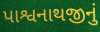
પાશ્વનાથજીનું